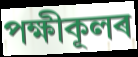
পক্ষীকূলৰ